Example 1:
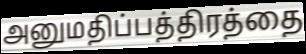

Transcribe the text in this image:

அனுமதிப்பத்திரத்தை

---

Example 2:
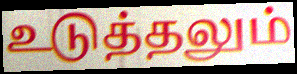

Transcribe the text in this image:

உடுத்தலும்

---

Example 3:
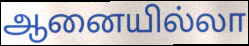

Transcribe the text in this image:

ஆனையில்லா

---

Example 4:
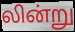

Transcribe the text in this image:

லின்று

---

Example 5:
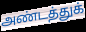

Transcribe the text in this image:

அண்டத்துக்